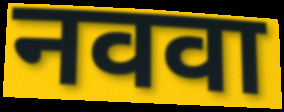
नववा